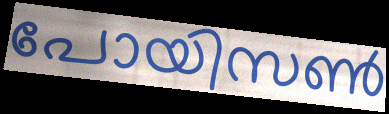
പോയിസൺ